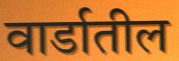
वार्डातील